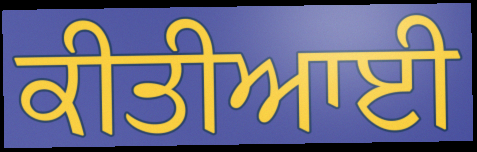
ਕੀਤੀਆਈ